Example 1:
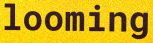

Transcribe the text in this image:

looming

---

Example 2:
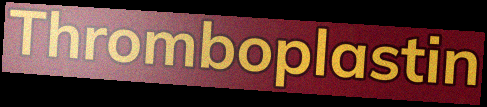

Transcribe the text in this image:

Thromboplastin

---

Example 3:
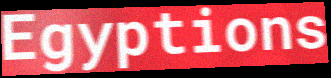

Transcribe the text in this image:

Egyptions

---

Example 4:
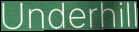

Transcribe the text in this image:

Underhill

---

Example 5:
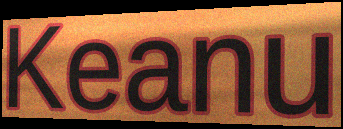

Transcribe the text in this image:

Keanu